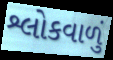
શ્લોકવાળું